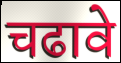
चढावे